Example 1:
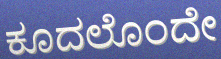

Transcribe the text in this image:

ಕೂದಲೊಂದೇ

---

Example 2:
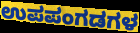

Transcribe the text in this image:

ಉಪಪಂಗಡಗಳ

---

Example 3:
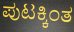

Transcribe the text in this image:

ಪುಟಕ್ಕಿಂತ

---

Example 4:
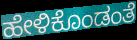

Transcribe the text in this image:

ಹೇಳಿಕೊಂಡಂತೆ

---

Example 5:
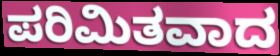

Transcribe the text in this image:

ಪರಿಮಿತವಾದ